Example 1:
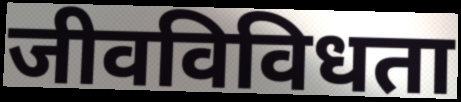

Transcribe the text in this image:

जीवविविधता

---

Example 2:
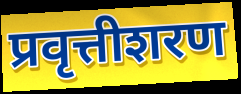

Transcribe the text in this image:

प्रवृत्तीशरण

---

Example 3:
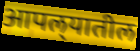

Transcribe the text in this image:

आपल्यातील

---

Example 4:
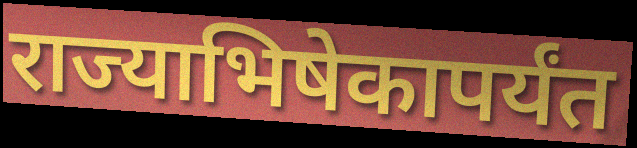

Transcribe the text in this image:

राज्याभिषेकापर्यंत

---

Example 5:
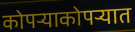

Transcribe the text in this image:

कोपऱ्याकोपऱ्यात